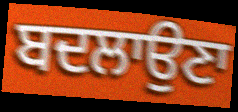
ਬਦਲਾਉਣਾ